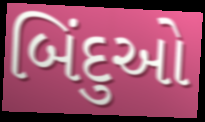
બિંદુઓ